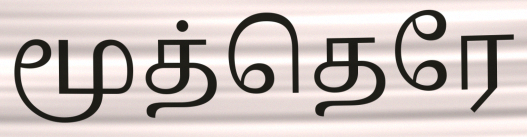
மூத்தெரே